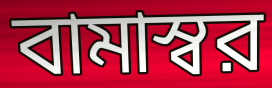
বামাস্বর